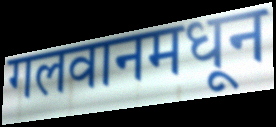
गलवानमधून